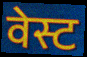
वेस्ट